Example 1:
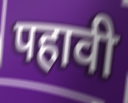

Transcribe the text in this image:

पहावी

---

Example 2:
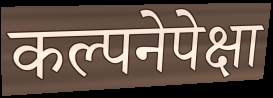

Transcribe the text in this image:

कल्पनेपेक्षा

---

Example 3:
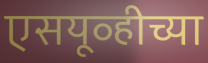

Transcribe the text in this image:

एसयूव्हीच्या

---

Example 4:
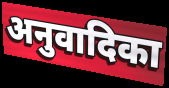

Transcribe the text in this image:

अनुवादिका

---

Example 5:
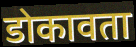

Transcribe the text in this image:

डोकावता